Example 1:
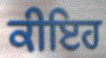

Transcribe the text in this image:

ਕੀਇਹ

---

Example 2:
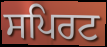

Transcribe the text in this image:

ਸਪਿਰਟ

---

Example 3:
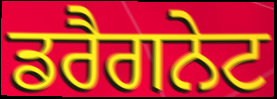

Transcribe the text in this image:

ਡਰੈਗਨੇਟ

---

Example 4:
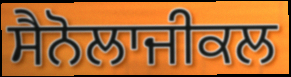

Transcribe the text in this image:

ਸੈਨੋਲਾਜੀਕਲ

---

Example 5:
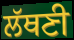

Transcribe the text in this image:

ਲੱਥਣੀ